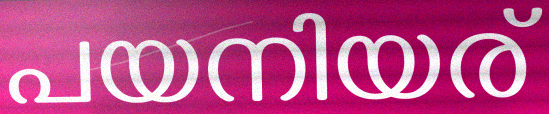
പയനിയര്